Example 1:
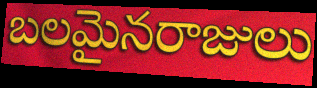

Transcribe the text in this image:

బలమైనరాజులు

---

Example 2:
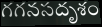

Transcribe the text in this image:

గగనసదృశం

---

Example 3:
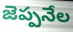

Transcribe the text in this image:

జెప్పనేల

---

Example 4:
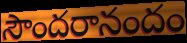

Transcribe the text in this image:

సౌందరానందం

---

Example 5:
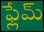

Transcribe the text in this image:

ఫ్లేమ్